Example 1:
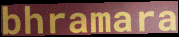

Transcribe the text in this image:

bhramara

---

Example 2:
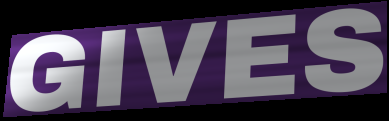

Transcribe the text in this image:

GIVES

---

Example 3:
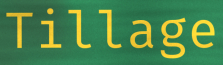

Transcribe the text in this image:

Tillage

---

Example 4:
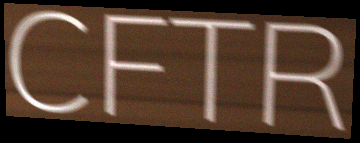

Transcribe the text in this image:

CFTR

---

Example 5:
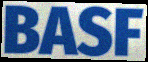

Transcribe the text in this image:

BASF